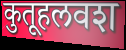
कुतूहलवश